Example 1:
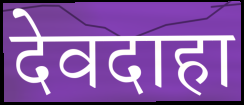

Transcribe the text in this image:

देवदाहा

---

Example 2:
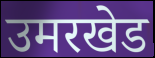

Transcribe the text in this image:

उमरखेड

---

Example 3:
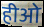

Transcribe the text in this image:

हीओ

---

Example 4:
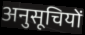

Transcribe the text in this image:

अनुसूचियों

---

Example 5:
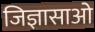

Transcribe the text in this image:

जिज्ञासाओ